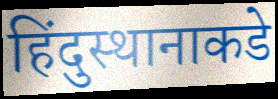
हिंदुस्थानाकडे